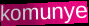
komunye